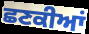
ਛਣਕੀਆਂ